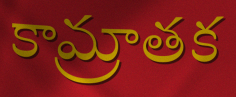
కామ్రాతక